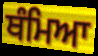
ਥੰਮਿਆ